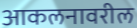
आकलनावरील